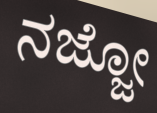
ನಜ್ಜೋ